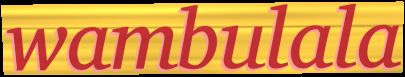
wambulala